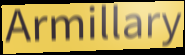
Armillary